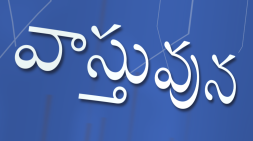
వాస్తువున